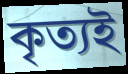
কৃত্যই